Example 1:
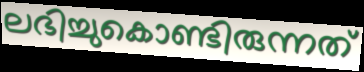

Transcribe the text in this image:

ലഭിച്ചുകൊണ്ടിരുന്നത്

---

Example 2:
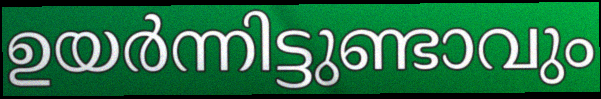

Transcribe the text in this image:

ഉയർന്നിട്ടുണ്ടാവും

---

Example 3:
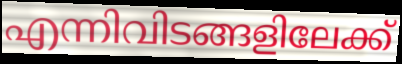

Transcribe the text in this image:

എന്നിവിടങ്ങളിലേക്ക്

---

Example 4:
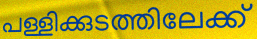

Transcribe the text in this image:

പള്ളിക്കുടത്തിലേക്ക്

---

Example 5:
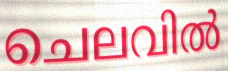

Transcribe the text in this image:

ചെലവിൽ